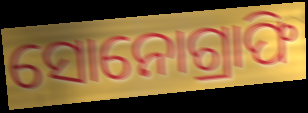
ସୋନୋଗ୍ରାଫି